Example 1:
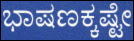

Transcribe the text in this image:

ಭಾಷಣಕ್ಕಷ್ಟೇ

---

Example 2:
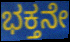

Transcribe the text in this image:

ಭಕ್ತನೇ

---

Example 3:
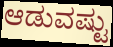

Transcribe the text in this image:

ಆಡುವಷ್ಟು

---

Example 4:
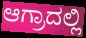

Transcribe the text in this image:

ಆಗ್ರಾದಲ್ಲಿ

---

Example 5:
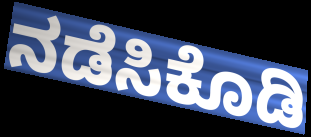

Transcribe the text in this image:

ನಡೆಸಿಕೊಡಿ